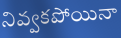
నివ్వకపోయినా